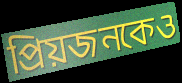
প্রিয়জনকেও